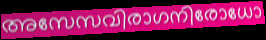
അസേസവിരാഗനിരോധോ